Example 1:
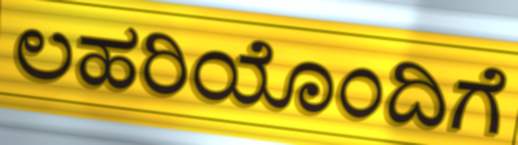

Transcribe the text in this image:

ಲಹರಿಯೊಂದಿಗೆ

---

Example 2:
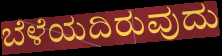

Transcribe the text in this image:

ಬೆಳೆಯದಿರುವುದು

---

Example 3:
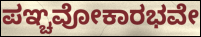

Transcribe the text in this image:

ಪಞ್ಚವೋಕಾರಭವೇ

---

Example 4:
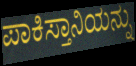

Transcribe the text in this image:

ಪಾಕಿಸ್ತಾನಿಯನ್ನು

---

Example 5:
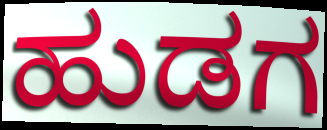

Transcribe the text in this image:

ಹುಡಗ